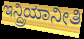
ಇನ್ದ್ರಿಯಾನೀತಿ